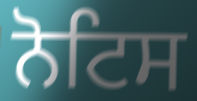
ਨੋਟਿਸ